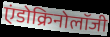
एंडोक्रिनोलॉजी